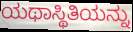
ಯಥಾಸ್ಥಿತಿಯನ್ನು